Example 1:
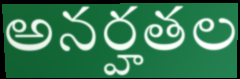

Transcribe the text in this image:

అనర్హతల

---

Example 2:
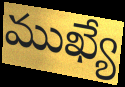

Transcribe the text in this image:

ముఖ్యే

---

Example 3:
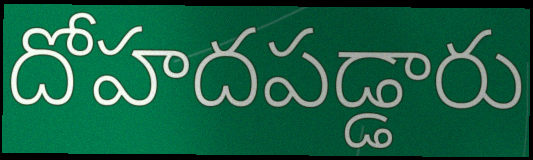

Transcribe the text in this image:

దోహదపడ్డారు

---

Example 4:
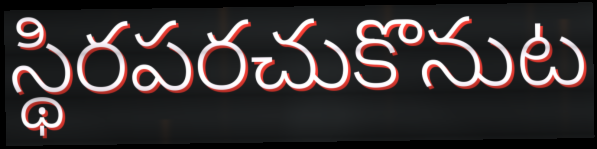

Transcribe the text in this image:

స్థిరపరచుకొనుట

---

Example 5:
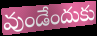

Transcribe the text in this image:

వుండేందుకు